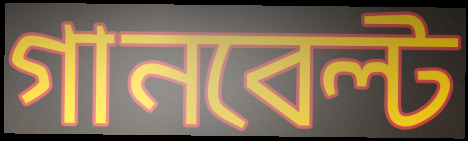
গানবেল্ট